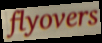
flyovers